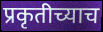
प्रकृतीच्याच